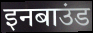
इनबाउंड